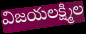
విజయలక్ష్మిల